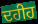
ਦਹੀਹ